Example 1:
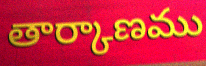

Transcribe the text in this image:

తార్కాణము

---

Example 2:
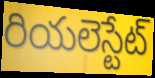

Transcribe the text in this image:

రియలెస్టేట్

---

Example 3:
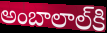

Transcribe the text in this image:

అంబాలాల్‌కి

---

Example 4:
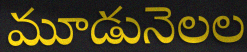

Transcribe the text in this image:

మూడునెలల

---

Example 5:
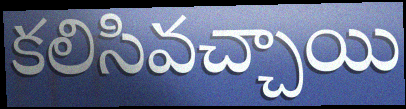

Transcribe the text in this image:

కలిసివచ్చాయి